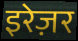
इरेज़र